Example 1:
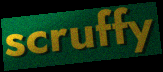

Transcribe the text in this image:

scruffy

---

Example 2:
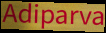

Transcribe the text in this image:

Adiparva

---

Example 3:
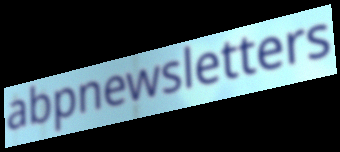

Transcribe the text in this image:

abpnewsletters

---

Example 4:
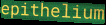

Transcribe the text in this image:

epithelium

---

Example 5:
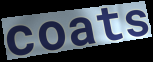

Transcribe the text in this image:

coats